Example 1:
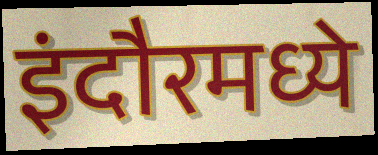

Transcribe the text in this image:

इंदौरमध्ये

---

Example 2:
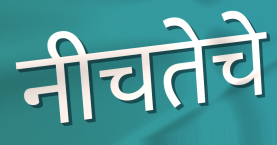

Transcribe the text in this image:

नीचतेचे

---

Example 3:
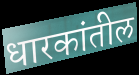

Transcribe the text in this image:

धारकांतील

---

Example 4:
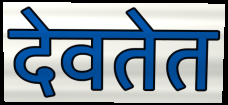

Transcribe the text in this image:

देवतेत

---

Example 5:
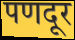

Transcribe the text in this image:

पणदूर